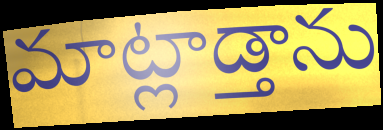
మాట్లాడ్తాను